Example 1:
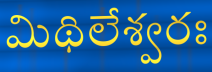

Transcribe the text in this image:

మిథిలేశ్వరః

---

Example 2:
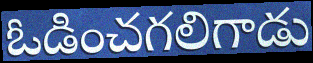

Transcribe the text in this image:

ఓడించగలిగాడు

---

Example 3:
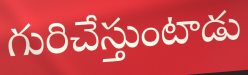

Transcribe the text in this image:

గురిచేస్తుంటాడు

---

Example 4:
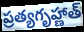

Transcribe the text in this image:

ప్రత్యగృహ్ణాత్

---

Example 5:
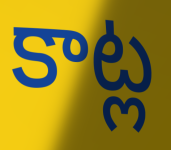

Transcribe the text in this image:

కాట్ల